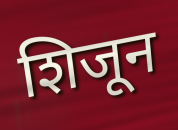
शिजून